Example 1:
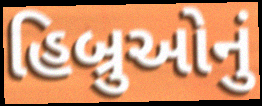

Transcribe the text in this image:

હિબ્રુઓનું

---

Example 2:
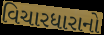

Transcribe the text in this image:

વિચારધારાનો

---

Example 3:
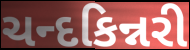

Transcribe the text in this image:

ચન્દકિન્નરી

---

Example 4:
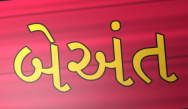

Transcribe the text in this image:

બેઅંત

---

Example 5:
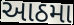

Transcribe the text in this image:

આઠમા